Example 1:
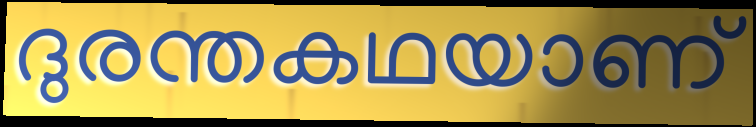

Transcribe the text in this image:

ദുരന്തകഥയാണ്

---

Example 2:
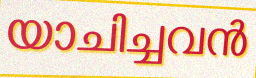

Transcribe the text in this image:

യാചിച്ചവൻ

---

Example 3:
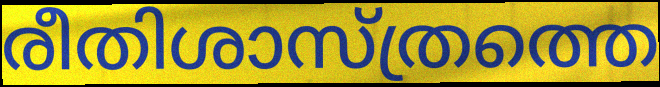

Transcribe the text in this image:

രീതിശാസ്ത്രത്തെ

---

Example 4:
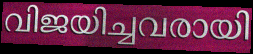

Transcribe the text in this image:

വിജയിച്ചവരായി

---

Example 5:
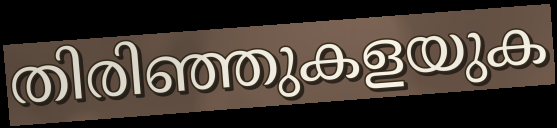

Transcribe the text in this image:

തിരിഞ്ഞുകളയുക